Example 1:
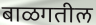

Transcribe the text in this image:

बाळगतील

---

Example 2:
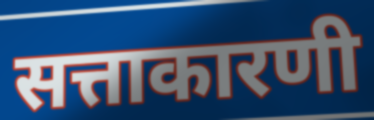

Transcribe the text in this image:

सत्ताकारणी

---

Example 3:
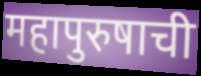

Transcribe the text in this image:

महापुरुषाची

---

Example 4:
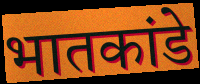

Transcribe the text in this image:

भातकांडे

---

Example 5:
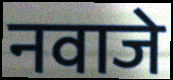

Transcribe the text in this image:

नवाजे